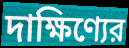
দাক্ষিণ্যের